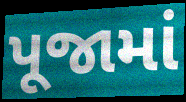
પૂજામાં